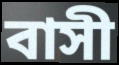
বাসী